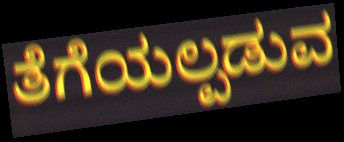
ತೆಗೆಯಲ್ಪಡುವ